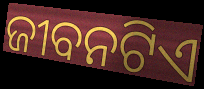
ଜୀବନଟିଏ